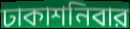
ঢাকাশনিবার